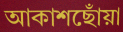
আকাশছোঁয়া